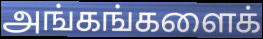
அங்கங்களைக்